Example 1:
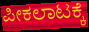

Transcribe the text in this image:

ಪೀಕಲಾಟಕ್ಕೆ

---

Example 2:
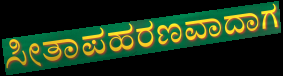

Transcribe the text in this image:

ಸೀತಾಪಹರಣವಾದಾಗ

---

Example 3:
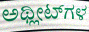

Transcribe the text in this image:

ಅಥ್ಲೀಟ್‌ಗಳ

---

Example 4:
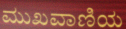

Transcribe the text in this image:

ಮುಖವಾಣಿಯ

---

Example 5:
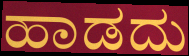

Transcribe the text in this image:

ಹಾಡದು